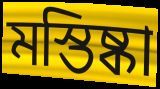
মস্তিষ্কা